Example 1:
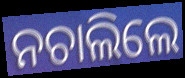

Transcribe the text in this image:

ନଚାଲିଲେ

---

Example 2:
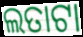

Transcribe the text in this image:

ଲତାଟା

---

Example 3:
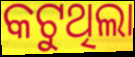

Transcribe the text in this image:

କଟୁଥିଲା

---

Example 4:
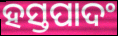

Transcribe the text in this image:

ହସ୍ତପାଦଂ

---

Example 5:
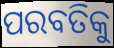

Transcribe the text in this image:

ପରବତିକୁ